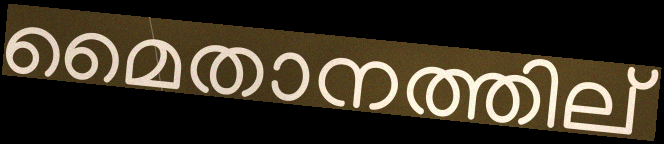
മൈതാനത്തില്